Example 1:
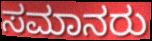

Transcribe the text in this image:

ಸಮಾನರು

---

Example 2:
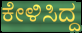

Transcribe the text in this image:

ಕೇಳಿಸಿದ್ದ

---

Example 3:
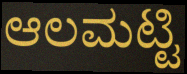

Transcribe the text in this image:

ಆಲಮಟ್ಟಿ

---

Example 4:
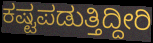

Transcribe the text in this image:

ಕಷ್ಟಪಡುತ್ತಿದ್ದೀರಿ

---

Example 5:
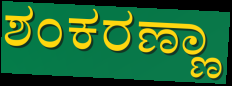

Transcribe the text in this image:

ಶಂಕರಣ್ಣಾ